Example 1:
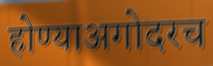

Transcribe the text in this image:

होण्याअगोदरच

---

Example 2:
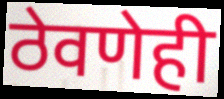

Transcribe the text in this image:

ठेवणेही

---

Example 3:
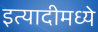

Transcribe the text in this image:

इत्यादीमध्ये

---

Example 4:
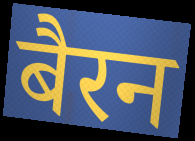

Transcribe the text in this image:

बैरन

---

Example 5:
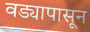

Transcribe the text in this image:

वड्यापासून